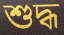
শুদ্ধ